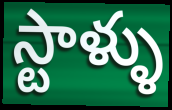
స్టాళ్ళు